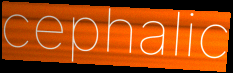
cephalic